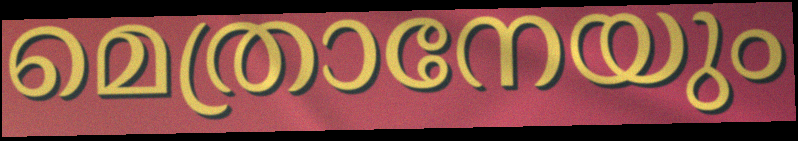
മെത്രാനേയും